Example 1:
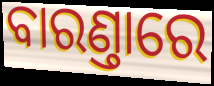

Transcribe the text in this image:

ବାରଣ୍ତାରେ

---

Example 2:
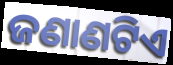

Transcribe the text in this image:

ଜଣାଣଟିଏ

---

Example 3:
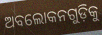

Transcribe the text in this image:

ଅବଲୋକନଗୁଡ଼ିକୁ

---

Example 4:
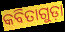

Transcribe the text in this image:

କବିତାଗୁଡ଼ା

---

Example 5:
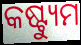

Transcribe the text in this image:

କଷ୍ଟ୍ୟୁମ